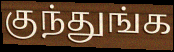
குந்துங்க